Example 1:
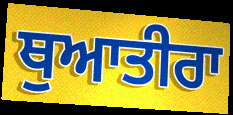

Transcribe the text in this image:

ਥੁਆਤੀਰਾ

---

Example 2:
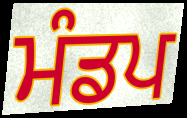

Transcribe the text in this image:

ਮੰਡਪ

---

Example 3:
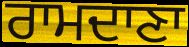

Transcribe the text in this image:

ਰਾਮਦਾਣਾ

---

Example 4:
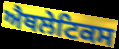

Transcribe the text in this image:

ਐਥਲੇਟਿਕਸ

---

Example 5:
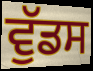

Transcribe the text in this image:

ਵੁੱਡਸ